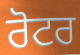
ਰੋਟਰ